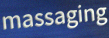
massaging